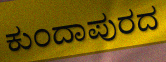
ಕುಂದಾಪುರದ